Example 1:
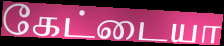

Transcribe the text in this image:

கேட்டையா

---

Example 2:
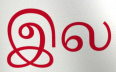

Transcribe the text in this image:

இல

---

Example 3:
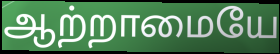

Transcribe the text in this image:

ஆற்றாமையே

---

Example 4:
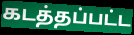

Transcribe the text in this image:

கடத்தப்பட்ட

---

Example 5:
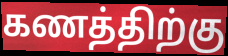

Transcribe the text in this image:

கணத்திற்கு